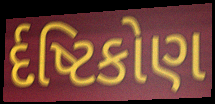
ર્દષ્ટિકોણ